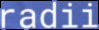
radii